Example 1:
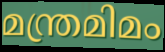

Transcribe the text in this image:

മന്ത്രമിമം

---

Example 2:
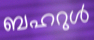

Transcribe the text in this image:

ബഹറുൾ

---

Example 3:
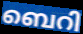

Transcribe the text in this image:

ബെറി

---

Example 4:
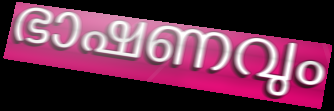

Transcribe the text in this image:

ഭാഷണവും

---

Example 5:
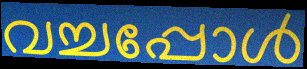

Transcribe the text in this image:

വച്ചപ്പോൾ